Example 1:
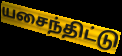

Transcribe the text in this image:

யசைந்திட்டு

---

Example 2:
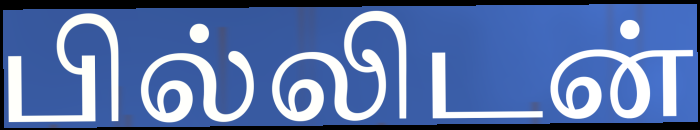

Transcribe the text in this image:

பில்லிடன்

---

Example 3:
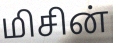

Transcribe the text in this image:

மிசின்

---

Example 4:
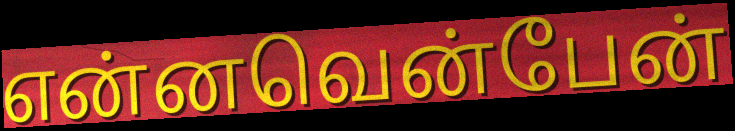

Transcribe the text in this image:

என்னவென்பேன்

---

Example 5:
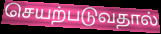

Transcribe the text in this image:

செயற்படுவதால்